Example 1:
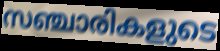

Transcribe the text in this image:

സഞ്ചാരികളുടെ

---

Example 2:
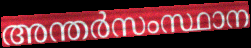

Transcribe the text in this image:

അന്തർസംസ്ഥാന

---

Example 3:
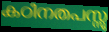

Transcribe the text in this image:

കഠിനതപസ്സു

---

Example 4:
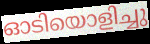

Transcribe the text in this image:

ഓടിയൊളിച്ചു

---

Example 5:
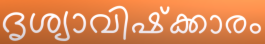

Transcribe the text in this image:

ദൃശ്യാവിഷ്‌ക്കാരം